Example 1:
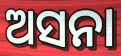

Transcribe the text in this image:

ଅସନା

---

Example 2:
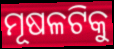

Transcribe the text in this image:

ମୂଷଳଟିକୁ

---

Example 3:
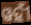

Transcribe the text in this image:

ୱହୀଁ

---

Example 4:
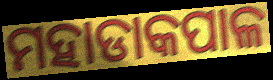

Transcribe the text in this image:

ମହାଡାକପାଳ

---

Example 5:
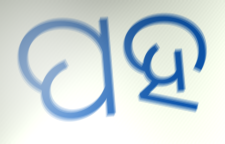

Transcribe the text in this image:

ପହ